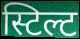
स्टिल्ट